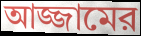
আজ্জামের